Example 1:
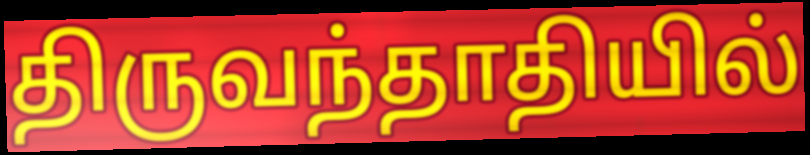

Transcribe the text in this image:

திருவந்தாதியில்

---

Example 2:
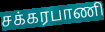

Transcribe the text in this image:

சக்கரபாணி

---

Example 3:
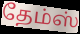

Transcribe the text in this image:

தேம்ஸ்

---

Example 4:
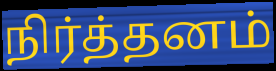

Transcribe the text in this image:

நிர்த்தனம்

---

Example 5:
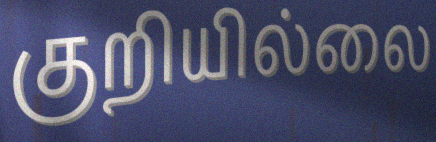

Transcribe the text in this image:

குறியில்லை